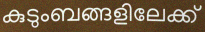
കുടുംബങ്ങളിലേക്ക്